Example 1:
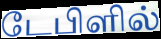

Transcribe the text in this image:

டேபிளில்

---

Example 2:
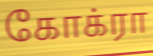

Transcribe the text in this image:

கோக்ரா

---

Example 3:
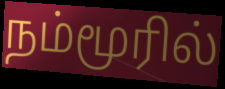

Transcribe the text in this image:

நம்மூரில்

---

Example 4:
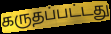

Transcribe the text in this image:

கருதப்பட்டது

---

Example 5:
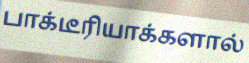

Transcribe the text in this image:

பாக்டீரியாக்களால்